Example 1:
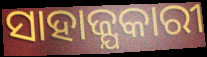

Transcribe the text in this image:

ସାହାଜ୍ଯକାରୀ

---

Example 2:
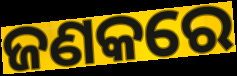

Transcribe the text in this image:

ଜଣକରେ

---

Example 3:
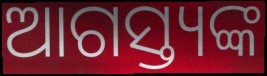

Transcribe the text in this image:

ଆଗସ୍ତ୍ୟଙ୍କ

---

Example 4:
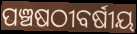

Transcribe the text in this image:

ପଞ୍ଚଷଠୀବର୍ଷୀୟ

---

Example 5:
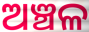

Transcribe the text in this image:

ଅଞ୍ଚଳ